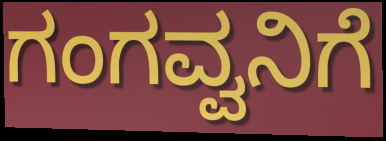
ಗಂಗವ್ವನಿಗೆ